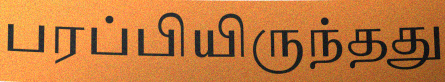
பரப்பியிருந்தது